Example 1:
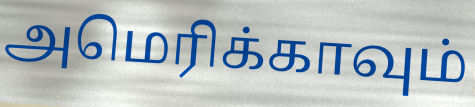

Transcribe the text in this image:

அமெரிக்காவும்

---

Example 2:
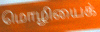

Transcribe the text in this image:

மொழியைக்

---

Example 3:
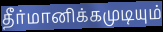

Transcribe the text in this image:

தீர்மானிக்கமுடியும்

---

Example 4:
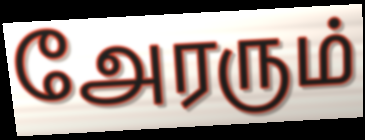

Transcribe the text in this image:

அேரரும்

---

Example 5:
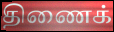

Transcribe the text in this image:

திணைக்